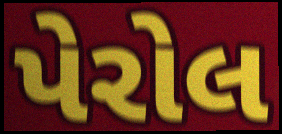
પેરોલ